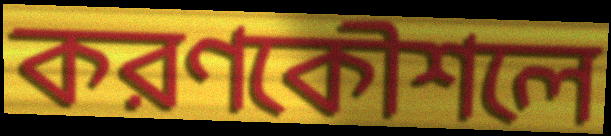
করণকৌশলে